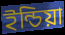
ইন্ডিয়া